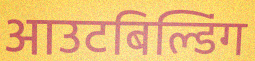
आउटबिल्डिंग